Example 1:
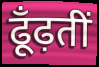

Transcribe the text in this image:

ढूँढ़तीं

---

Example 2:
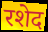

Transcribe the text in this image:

रशेद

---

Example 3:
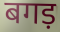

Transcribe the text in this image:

बगड़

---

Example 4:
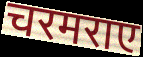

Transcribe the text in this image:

चरमराए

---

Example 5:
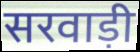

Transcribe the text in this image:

सरवाड़ी